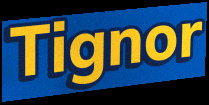
Tignor